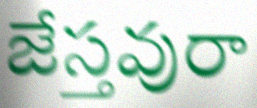
జేస్తవురా